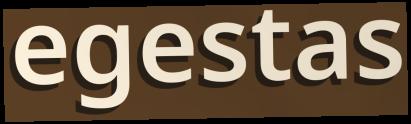
egestas